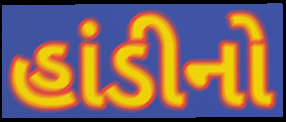
હાંડીનો